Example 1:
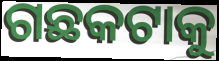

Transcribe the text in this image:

ଗଛକଟାକୁ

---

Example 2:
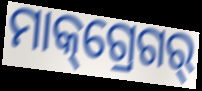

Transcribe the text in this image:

ମାକ୍‌ଗ୍ରେଗର୍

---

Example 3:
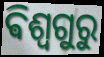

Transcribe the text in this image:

ଵିଶ୍ଵଗୁରୁ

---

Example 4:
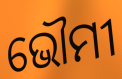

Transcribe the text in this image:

ଭୌମୀ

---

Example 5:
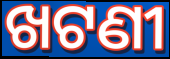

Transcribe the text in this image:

ଖଟଣୀ